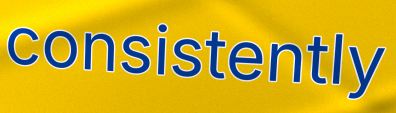
consistently